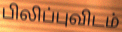
பிலிப்புவிடம்